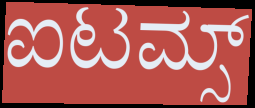
ಐಟಮ್ಸ್